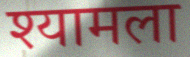
श्यामला